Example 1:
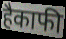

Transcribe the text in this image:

हैकाफी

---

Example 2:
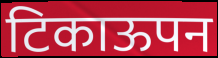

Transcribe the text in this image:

टिकाऊपन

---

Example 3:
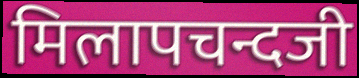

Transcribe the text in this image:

मिलापचन्दजी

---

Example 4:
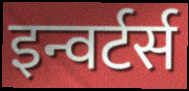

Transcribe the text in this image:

इन्वर्टर्स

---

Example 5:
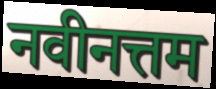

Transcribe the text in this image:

नवीनत्तम